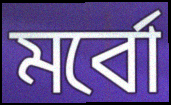
মর্বো